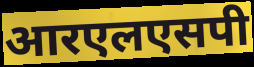
आरएलएसपी